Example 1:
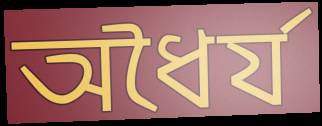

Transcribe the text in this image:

অধৈর্য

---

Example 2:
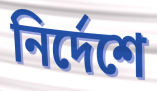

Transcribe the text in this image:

নির্দেশে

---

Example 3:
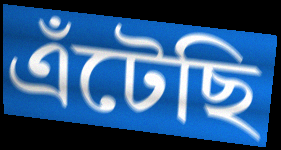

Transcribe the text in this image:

এঁটেছি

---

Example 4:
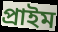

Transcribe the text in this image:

প্রাইম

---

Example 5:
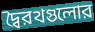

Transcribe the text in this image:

দ্বৈরথগুলোর